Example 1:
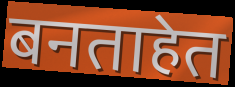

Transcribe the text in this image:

बनताहेत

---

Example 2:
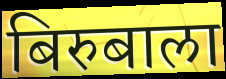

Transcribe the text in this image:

बिरुबाला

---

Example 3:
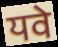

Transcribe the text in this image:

यवे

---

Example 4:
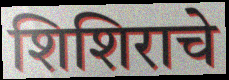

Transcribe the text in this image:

शिशिराचे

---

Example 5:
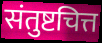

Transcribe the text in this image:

संतुष्टचित्त